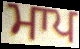
ਮਾਪ